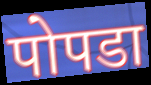
पोपडा